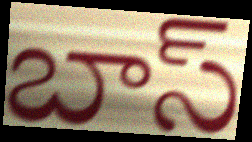
బాస్